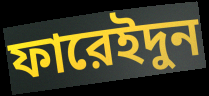
ফারেইদুন